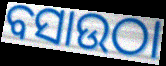
ବସାଉଠା